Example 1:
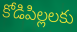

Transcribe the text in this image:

కోడిపిల్లలకు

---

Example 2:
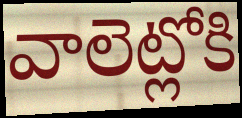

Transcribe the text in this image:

వాలెట్లోకి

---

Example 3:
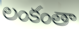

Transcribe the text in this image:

లంకంతా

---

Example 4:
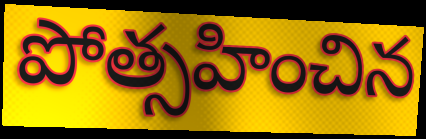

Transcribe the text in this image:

పోత్సహించిన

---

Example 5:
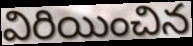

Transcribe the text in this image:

విరియించిన